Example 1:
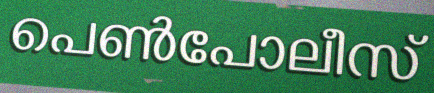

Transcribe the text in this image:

പെൺപോലീസ്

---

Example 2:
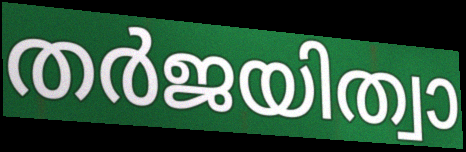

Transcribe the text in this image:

തർജയിത്വാ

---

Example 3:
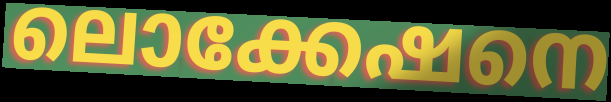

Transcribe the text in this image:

ലൊക്കേഷനെ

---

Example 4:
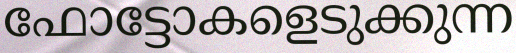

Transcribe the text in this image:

ഫോട്ടോകളെടുക്കുന്ന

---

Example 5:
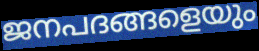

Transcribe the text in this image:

ജനപദങ്ങളെയും